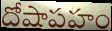
దోషాపహం